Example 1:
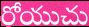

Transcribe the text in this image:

రోయుచు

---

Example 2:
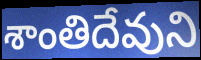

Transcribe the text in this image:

శాంతిదేవుని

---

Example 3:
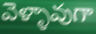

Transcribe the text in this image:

వెళ్ళావుగా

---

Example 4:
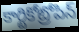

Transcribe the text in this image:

కార్టికోట్రోపిన్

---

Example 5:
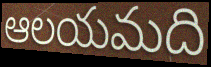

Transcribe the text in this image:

ఆలయమది